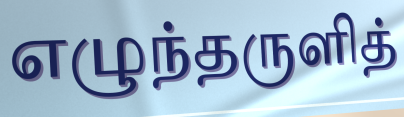
எழுந்தருளித்